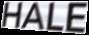
HALE